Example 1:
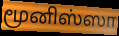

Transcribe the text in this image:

மூனிஸ்ஸா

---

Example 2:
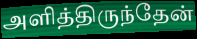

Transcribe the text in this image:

அளித்திருந்தேன்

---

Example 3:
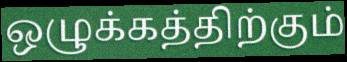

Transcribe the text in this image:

ஒழுக்கத்திற்கும்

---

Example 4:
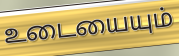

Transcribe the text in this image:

உடையையும்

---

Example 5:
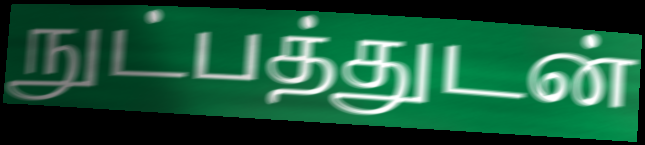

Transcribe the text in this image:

நுட்பத்துடன்